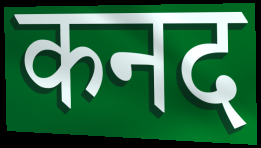
कनद